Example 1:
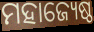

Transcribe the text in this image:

ମହାଜ୍ୟେଷ୍ଠ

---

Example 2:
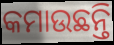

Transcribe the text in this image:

କମାଉଛନ୍ତି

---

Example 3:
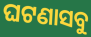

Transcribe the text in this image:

ଘଟଣାସବୁ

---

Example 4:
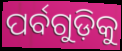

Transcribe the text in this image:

ପର୍ବଗୁଡ଼ିକୁ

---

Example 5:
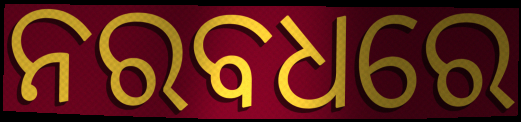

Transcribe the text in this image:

ନରବଧରେ